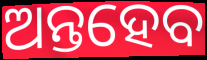
ଅନ୍ତହେବ